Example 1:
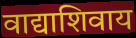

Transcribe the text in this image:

वाद्याशिवाय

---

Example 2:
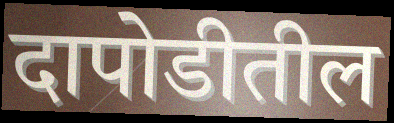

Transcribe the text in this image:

दापोडीतील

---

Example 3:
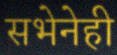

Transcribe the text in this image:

सभेनेही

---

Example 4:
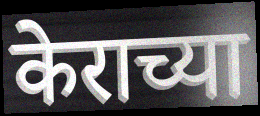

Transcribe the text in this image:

केराच्या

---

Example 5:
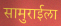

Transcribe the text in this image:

सामुराईला